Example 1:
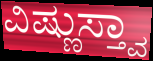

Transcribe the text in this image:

ವಿಷ್ಣುಸ್ತ್ವಾ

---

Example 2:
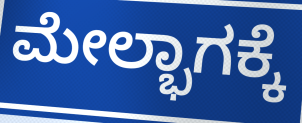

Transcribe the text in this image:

ಮೇಲ್ಭಾಗಕ್ಕೆ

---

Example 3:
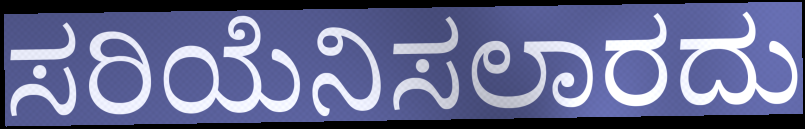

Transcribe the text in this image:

ಸರಿಯೆನಿಸಲಾರದು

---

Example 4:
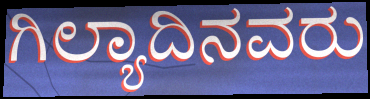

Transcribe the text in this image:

ಗಿಲ್ಯಾದಿನವರು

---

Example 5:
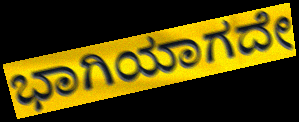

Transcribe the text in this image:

ಭಾಗಿಯಾಗದೇ